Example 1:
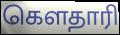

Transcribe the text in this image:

கௌதாரி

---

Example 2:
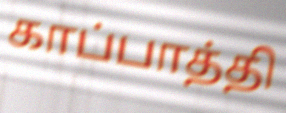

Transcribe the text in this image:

காப்பாத்தி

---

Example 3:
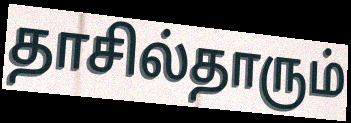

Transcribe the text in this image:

தாசில்தாரும்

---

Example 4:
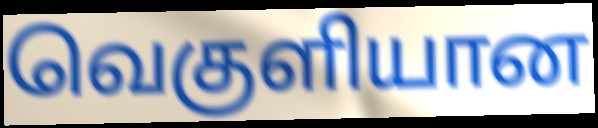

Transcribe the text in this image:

வெகுளியான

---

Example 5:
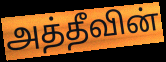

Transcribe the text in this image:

அத்தீவின்